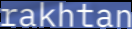
rakhtan